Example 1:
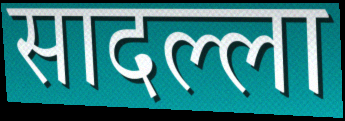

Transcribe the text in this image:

सादल्ला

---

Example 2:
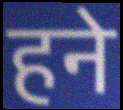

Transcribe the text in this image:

हने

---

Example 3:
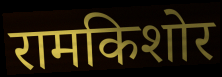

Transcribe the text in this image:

रामकिशोर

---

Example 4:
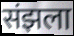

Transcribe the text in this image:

संझला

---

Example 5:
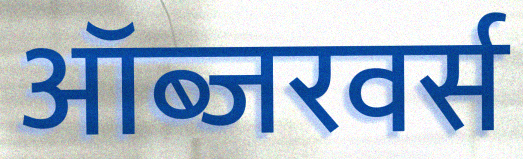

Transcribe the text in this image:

ऑब्जरवर्स